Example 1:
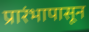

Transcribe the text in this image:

प्रारंभापासून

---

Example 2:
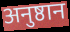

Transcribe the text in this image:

अनुष्ठान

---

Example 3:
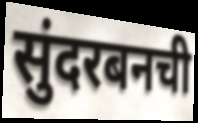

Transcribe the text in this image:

सुंदरबनची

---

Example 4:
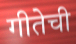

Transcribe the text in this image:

गीतेची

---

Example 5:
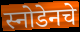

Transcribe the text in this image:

स्नोडेनचे